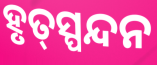
ହୃତ୍‍ସ୍ପନ୍ଦନ